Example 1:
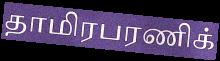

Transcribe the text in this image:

தாமிரபரணிக்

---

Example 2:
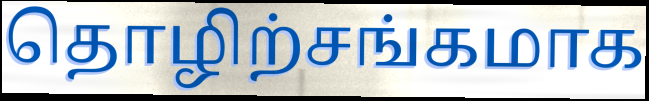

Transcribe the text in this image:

தொழிற்சங்கமாக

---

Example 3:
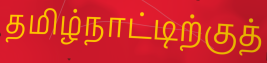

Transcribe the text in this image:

தமிழ்நாட்டிற்குத்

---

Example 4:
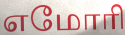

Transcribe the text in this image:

எமோரி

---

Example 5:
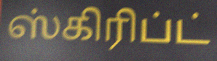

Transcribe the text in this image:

ஸ்கிரிப்ட்